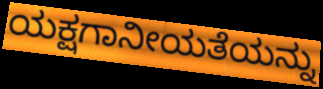
ಯಕ್ಷಗಾನೀಯತೆಯನ್ನು